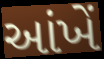
આંખેં